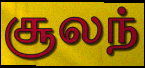
சூலந்